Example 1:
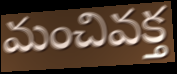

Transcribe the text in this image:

మంచివక్త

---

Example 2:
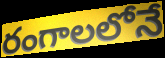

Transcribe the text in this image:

రంగాలలోనే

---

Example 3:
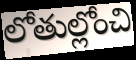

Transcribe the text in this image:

లోతుల్లోంచి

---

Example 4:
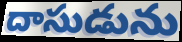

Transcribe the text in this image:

దాసుడును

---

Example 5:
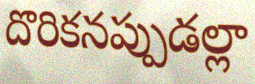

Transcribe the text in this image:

దొరికనప్పుడల్లా